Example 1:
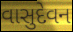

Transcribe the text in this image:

વાસુદેવન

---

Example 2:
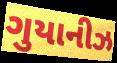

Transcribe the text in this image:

ગુયાનીઝ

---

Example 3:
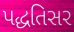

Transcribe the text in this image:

પદ્ધતિસર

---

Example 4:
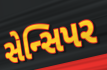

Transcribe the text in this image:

સેન્સિપર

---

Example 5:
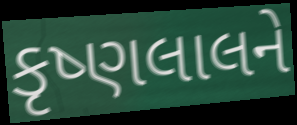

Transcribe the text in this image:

કૃષ્ણલાલને